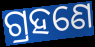
ଗ୍ରହଣେ